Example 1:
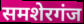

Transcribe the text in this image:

समशेरगंज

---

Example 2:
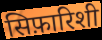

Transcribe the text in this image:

सिफ़ारिशी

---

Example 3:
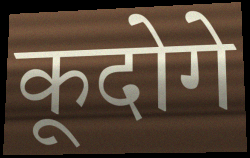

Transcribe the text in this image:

कूदोगे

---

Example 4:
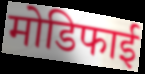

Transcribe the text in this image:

मोडिफाई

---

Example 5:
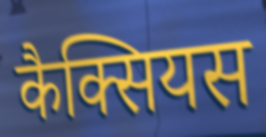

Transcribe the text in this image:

कैक्सियस